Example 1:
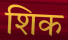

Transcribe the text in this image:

शिक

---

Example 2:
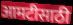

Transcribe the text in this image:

आमटीसाठी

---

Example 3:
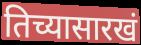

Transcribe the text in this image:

तिच्यासारखं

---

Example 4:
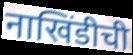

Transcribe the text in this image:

नाखिंडीची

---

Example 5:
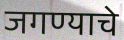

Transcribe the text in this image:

जगण्याचे